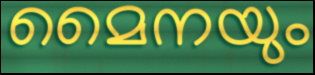
മൈനയും